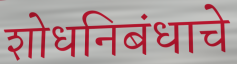
शोधनिबंधाचे